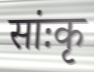
सांःकृ